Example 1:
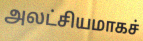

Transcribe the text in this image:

அலட்சியமாகச்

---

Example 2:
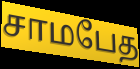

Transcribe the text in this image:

சாமபேத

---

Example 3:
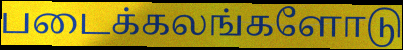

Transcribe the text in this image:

படைக்கலங்களோடு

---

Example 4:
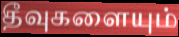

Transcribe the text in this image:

தீவுகளையும்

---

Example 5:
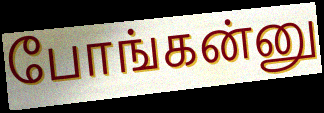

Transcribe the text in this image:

போங்கன்னு